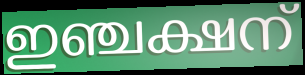
ഇഞ്ചക്ഷന്